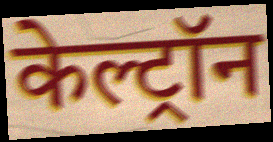
केल्ट्रॉन